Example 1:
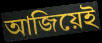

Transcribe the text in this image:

আজিয়েই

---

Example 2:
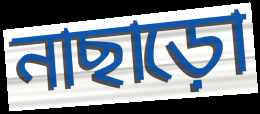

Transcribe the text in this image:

নাছাড়ো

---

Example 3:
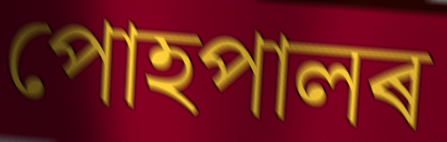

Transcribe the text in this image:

পোহপালৰ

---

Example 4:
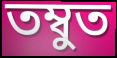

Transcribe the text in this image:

তম্বুত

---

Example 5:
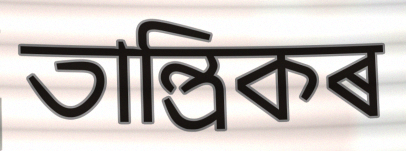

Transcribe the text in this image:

তান্ত্ৰিকৰ